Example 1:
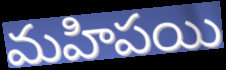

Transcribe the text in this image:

మహిపయి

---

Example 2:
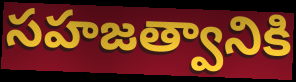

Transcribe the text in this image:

సహజత్వానికి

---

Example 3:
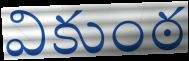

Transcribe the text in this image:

వికుంఠ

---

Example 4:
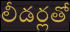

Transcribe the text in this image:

లీడర్లతో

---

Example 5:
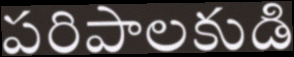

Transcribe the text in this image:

పరిపాలకుడి